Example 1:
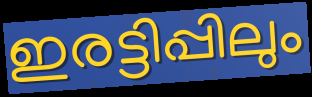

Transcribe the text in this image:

ഇരട്ടിപ്പിലും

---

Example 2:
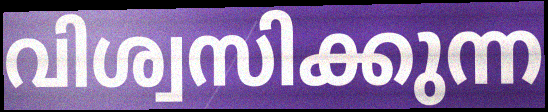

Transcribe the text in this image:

വിശ്വസിക്കുന്ന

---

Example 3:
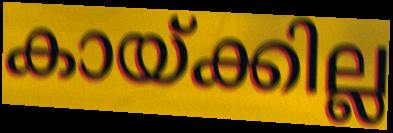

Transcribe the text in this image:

കായ്ക്കില്ല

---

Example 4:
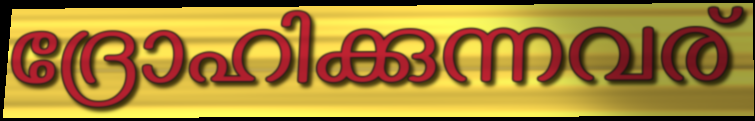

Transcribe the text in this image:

ദ്രോഹിക്കുന്നവര്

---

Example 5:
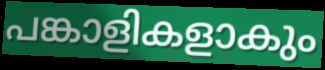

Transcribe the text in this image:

പങ്കാളികളാകും